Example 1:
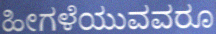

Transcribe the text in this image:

ಹೀಗಳೆಯುವವರೂ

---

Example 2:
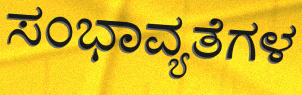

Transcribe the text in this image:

ಸಂಭಾವ್ಯತೆಗಳ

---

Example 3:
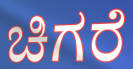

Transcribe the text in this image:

ಚಿಗರೆ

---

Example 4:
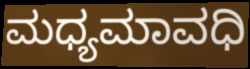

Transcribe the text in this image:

ಮಧ್ಯಮಾವಧಿ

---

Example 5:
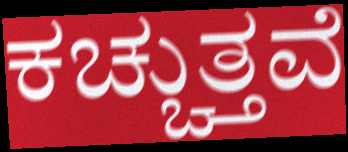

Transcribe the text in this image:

ಕಚ್ಚುತ್ತವೆ